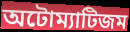
অটোম্যাটিজম